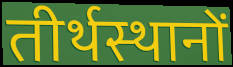
तीर्थस्थानों